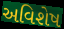
અવિશેષ